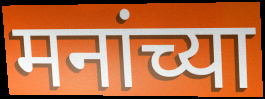
मनांच्या